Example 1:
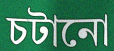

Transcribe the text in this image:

চটানো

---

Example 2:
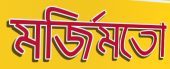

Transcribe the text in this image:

মর্জিমতো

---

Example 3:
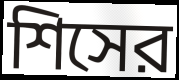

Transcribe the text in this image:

শিসের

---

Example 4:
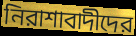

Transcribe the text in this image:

নিরাশাবাদীদের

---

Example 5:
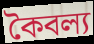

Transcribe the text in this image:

কৈবল্য